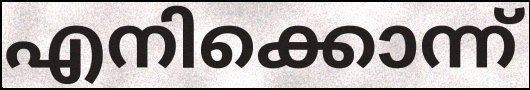
എനിക്കൊന്ന്